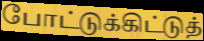
போட்டுக்கிட்டுத்